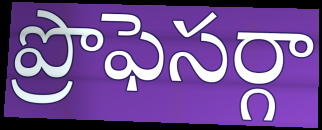
ప్రొఫెసర్గా